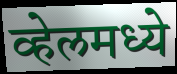
व्हेलमध्ये